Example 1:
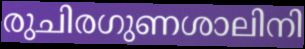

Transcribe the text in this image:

രുചിരഗുണശാലിനി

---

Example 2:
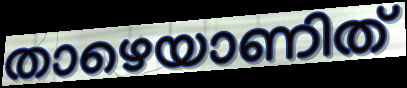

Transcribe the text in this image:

താഴെയാണിത്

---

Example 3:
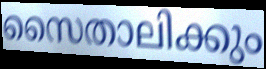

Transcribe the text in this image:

സൈതാലിക്കും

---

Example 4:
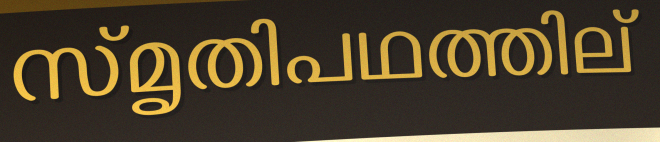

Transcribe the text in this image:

സ്മൃതിപഥത്തില്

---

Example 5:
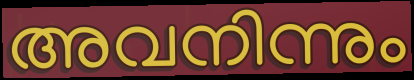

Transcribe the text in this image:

അവനിന്നും